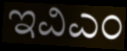
ಇವಿಎಂ